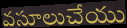
వసూలుచేయు